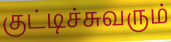
குட்டிச்சுவரும்